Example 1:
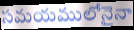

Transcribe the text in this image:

సమయములోనైనా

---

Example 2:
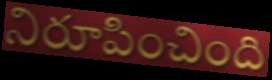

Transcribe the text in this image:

నిరూపించింది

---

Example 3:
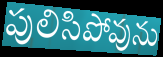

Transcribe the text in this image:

పులిసిపోవును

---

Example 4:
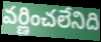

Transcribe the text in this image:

వర్ణించలేనిది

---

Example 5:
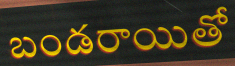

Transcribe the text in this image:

బండరాయితో